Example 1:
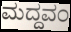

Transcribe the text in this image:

ಮದ್ದವಂ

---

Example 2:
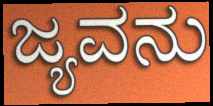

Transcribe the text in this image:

ಜ್ಯವನು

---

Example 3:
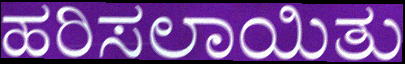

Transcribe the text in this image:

ಹರಿಸಲಾಯಿತು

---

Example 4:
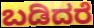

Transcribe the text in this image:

ಬಡಿದರೆ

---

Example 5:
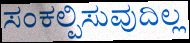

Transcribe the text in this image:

ಸಂಕಲ್ಪಿಸುವುದಿಲ್ಲ